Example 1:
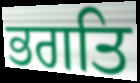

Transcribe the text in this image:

ਭਗਤਿ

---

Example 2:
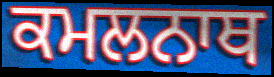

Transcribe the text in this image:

ਕਮਲਨਾਥ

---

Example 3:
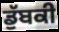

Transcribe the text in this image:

ਡੁੱਬਕੀ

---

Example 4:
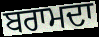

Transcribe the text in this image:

ਬਰਾਮਦਾ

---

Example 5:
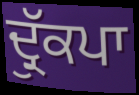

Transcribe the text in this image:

ਦ੍ਰੁੱਕਪਾ